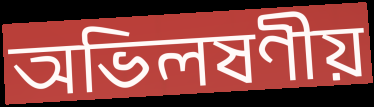
অভিলষণীয়